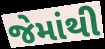
જેમાંથી